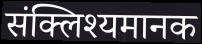
संक्लिश्यमानक